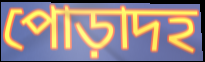
পোড়াদহ